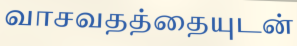
வாசவதத்தையுடன்